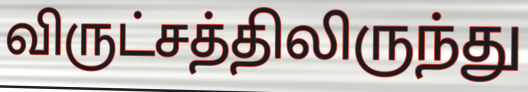
விருட்சத்திலிருந்து